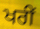
ਖਰੀਂ